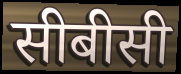
सीबीसी